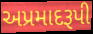
અપ્રમાદરૂપી